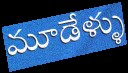
మూడేళ్ళు